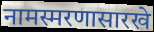
नामस्मरणासारखे